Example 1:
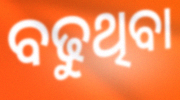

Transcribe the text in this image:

ବଢୁଥିବା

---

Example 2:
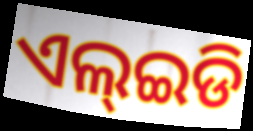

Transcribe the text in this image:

ଏଲ୍ଇଡି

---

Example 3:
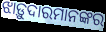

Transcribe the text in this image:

ଝାଡ଼ୁଦାରମାନଙ୍କର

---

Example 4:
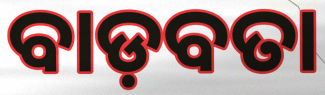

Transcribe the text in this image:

ବାଡ଼ବତା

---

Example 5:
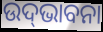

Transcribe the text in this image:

ଉଦ୍‍ଭାବନା